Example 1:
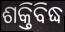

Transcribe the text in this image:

ଶକ୍ତିବିଦ୍ଧ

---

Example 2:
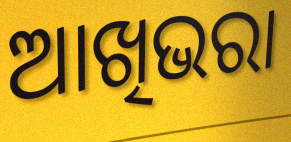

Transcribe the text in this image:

ଆଖିଭରା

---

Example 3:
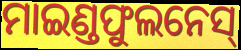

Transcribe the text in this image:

ମାଇଣ୍ଡଫୁଲନେସ୍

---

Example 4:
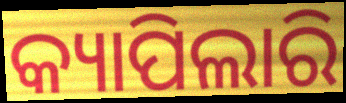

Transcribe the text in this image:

କ୍ୟାପିଲାରି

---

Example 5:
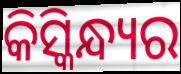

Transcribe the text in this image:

କିସ୍କିନ୍ଧ୍ୟର